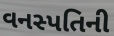
વનસ્પતિની